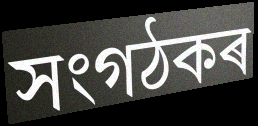
সংগঠকৰ